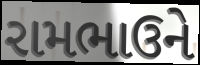
રામભાઉને